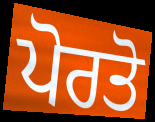
ਪੋਰਤੋ